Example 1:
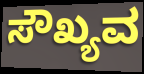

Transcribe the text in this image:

ಸೌಖ್ಯವ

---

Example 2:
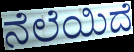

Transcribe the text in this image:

ನೆಲೆಯಿದೆ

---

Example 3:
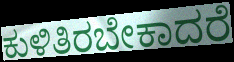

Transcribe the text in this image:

ಕುಳಿತಿರಬೇಕಾದರೆ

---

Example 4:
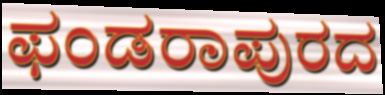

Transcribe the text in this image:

ಫಂಡರಾಪುರದ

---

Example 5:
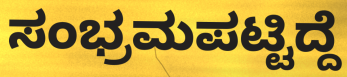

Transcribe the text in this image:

ಸಂಭ್ರಮಪಟ್ಟಿದ್ದೆ